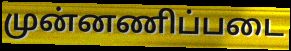
முன்னணிப்படை